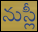
నుస్లీ